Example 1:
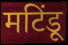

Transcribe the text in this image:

मटिंडू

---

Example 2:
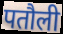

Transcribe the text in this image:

पतौली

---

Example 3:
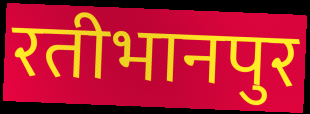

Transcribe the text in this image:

रतीभानपुर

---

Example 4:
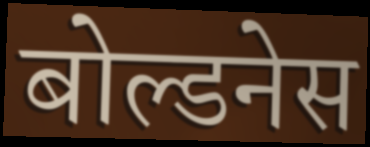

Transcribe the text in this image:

बोल्डनेस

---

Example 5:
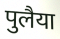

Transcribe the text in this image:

पुलैया